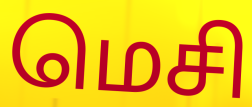
மெசி